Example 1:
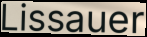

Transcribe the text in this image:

Lissauer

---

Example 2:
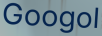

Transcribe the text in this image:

Googol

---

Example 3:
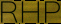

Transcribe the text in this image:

RHP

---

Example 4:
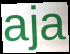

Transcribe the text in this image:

aja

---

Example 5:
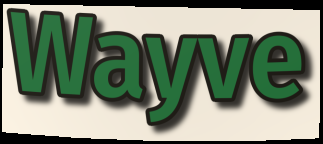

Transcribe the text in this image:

Wayve